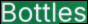
Bottles